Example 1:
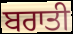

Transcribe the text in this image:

ਬਰਾਤੀ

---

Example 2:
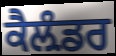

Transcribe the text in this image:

ਕੈਲ਼ੰਡਰ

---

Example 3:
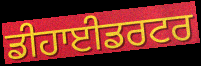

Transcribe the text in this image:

ਡੀਹਾਈਡਰਟਰ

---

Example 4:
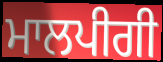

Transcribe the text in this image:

ਮਾਲਪੀਗੀ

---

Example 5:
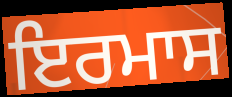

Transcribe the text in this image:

ਇਰਮਾਸ